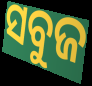
ସବୁଜ